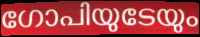
ഗോപിയുടേയും